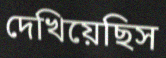
দেখিয়েছিস